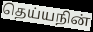
தெய்யநின்